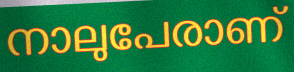
നാലുപേരാണ്